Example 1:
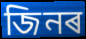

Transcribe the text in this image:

জিনৰ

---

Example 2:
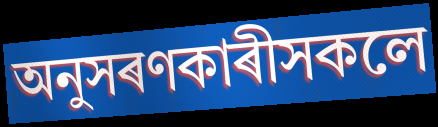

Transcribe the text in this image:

অনুসৰণকাৰীসকলে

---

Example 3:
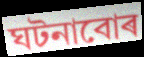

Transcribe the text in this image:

ঘটনাবোৰ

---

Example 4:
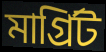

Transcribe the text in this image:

মাৰ্গ্ৰিট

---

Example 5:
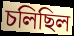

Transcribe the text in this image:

চলিছিল